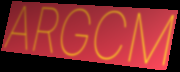
ARGCM